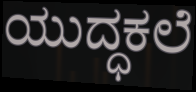
ಯುದ್ಧಕಲೆ